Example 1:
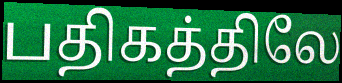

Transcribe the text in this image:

பதிகத்திலே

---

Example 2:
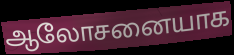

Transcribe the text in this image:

ஆலோசனையாக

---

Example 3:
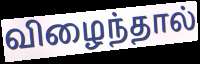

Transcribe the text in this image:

விழைந்தால்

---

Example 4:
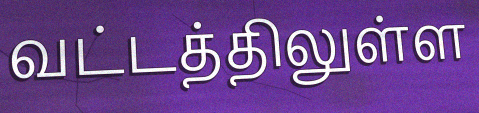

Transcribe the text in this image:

வட்டத்திலுள்ள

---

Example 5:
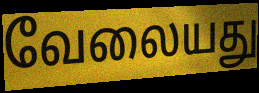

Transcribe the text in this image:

வேலையது